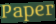
Paper